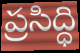
ప్రసిద్ధి